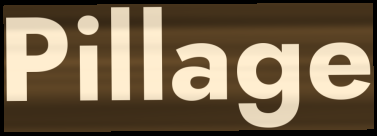
Pillage